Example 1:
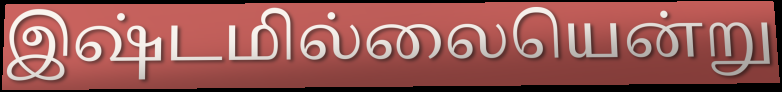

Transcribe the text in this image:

இஷ்டமில்லையென்று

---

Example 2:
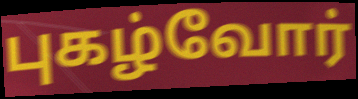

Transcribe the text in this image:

புகழ்வோர்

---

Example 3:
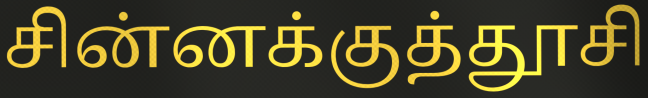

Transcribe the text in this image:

சின்னக்குத்தூசி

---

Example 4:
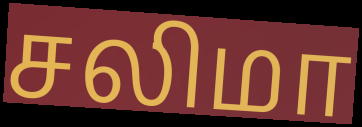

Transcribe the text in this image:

சலிமா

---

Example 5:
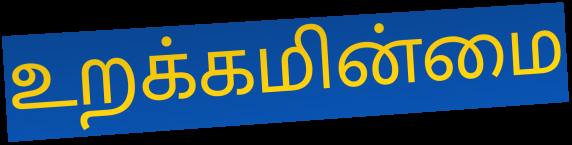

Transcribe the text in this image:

உறக்கமின்மை